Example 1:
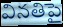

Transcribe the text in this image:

వినతిపై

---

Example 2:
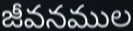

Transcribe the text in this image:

జీవనముల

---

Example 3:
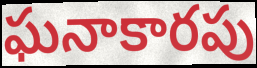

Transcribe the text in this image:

ఘనాకారపు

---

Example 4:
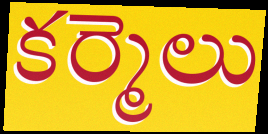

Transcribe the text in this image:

కర్మెలు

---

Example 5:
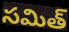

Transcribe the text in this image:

సమిత్